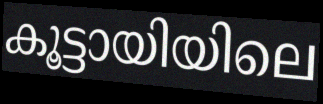
കൂട്ടായിയിലെ